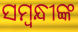
ସମ୍ବନ୍ଧୀଙ୍କ